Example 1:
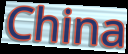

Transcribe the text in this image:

China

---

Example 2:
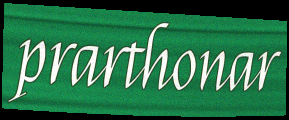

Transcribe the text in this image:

prarthonar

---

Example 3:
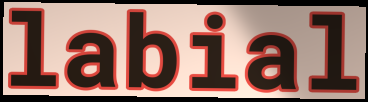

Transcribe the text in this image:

labial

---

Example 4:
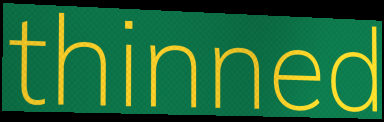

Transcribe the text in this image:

thinned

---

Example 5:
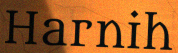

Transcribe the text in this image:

Harnih